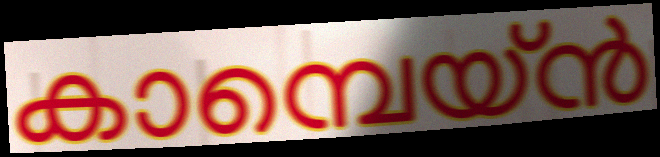
കാമ്പെയ്ൻ